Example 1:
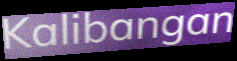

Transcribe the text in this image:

Kalibangan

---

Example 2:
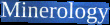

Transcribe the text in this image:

Minerology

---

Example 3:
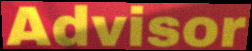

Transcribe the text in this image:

Advisor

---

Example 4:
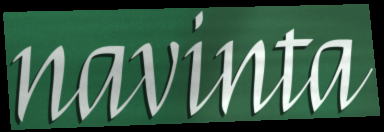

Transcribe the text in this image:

navinta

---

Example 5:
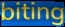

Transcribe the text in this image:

biting